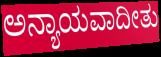
ಅನ್ಯಾಯವಾದೀತು